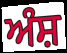
ਅੰਸ਼